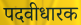
पदवीधारक